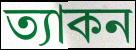
ত্যাকন